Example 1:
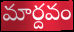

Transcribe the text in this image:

మార్దవం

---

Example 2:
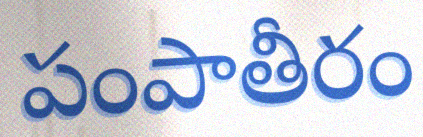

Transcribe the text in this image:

పంపాతీరం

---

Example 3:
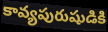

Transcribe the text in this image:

కావ్యపురుషుడికి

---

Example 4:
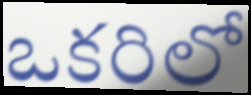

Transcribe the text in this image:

ఒకరిలో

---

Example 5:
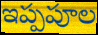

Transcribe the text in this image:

ఇప్పపూల